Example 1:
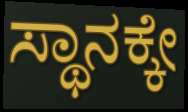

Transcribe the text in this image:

ಸ್ಥಾನಕ್ಕೇ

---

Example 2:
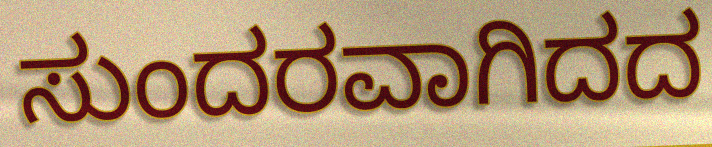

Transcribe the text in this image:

ಸುಂದರವಾಗಿದದ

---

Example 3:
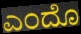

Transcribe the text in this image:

ಎಂದೊ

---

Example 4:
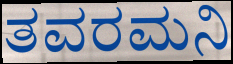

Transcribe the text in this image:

ತವರಮನಿ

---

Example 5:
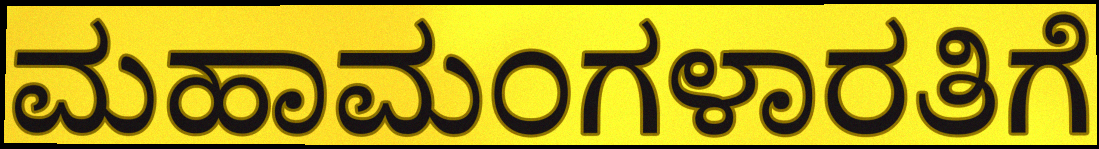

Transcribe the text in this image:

ಮಹಾಮಂಗಳಾರತಿಗೆ